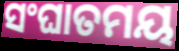
ସଂଘାତମୟ